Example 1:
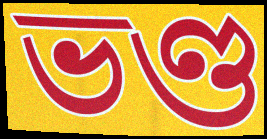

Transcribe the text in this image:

ভণ্ড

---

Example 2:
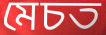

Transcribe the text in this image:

মেচত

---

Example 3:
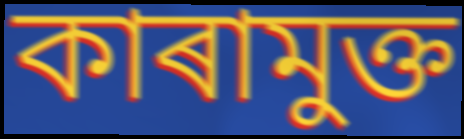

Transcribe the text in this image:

কাৰামুক্ত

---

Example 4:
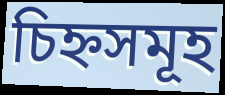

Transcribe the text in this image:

চিহ্নসমূহ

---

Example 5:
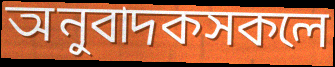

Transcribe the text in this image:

অনুবাদকসকলে